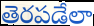
తెరపడేలా